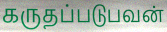
கருதப்படுபவன்